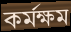
কর্মক্ষম